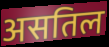
असतिल